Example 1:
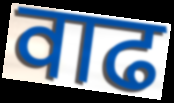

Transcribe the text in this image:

वाढ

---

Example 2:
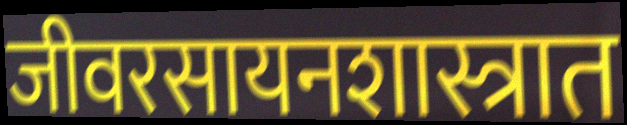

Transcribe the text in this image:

जीवरसायनशास्त्रात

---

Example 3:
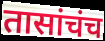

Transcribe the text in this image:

तासांचंच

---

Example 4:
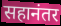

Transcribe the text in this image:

सहानंतर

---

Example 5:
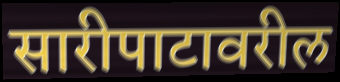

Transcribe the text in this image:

सारीपाटावरील